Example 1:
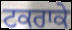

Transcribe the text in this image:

ਟਕਰਾਕੇ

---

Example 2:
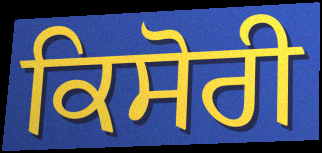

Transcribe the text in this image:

ਕਿਸੋਰੀ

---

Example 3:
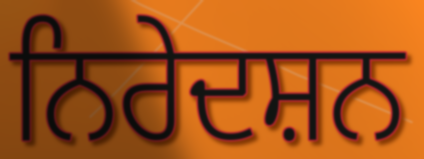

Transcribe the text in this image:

ਨਿਰੇਦਸ਼ਨ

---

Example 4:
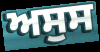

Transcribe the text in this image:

ਅਸੁਸ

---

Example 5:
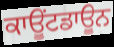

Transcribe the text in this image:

ਕਾਊਂਟਡਾਊਨ